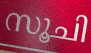
സൂചി